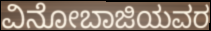
ವಿನೋಬಾಜಿಯವರ